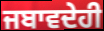
ਜਬਾਵਦੇਹੀ